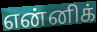
என்னிக்